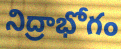
నిద్రాభోగం